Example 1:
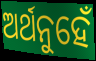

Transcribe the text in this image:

ଅର୍ଥନୁହେଁ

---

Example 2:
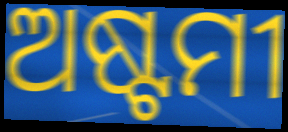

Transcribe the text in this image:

ଅଷ୍ଟମୀ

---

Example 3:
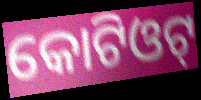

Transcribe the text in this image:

କୋଟିଓଟ୍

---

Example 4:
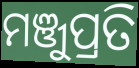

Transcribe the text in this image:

ମଞ୍ଜୁପ୍ରତି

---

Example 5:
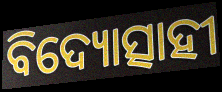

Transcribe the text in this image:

ବିଦ୍ୟୋତ୍ସାହୀ